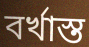
বৰ্খাস্ত